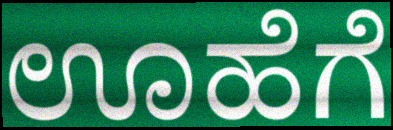
ಊಹೆಗೆ